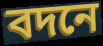
বদনে